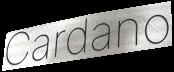
Cardano